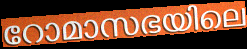
റോമാസഭയിലെ